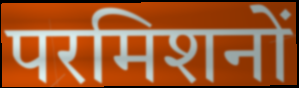
परमिशनों